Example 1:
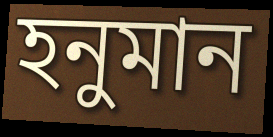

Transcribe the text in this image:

হনুমান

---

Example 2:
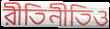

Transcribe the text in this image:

রীতিনীতিও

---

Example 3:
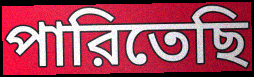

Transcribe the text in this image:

পারিতেছি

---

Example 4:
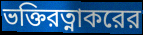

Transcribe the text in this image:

ভক্তিরত্নাকরের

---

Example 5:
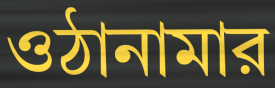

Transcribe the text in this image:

ওঠানামার